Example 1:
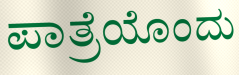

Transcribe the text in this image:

ಪಾತ್ರೆಯೊಂದು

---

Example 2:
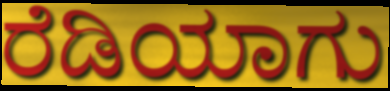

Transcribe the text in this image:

ರೆಡಿಯಾಗು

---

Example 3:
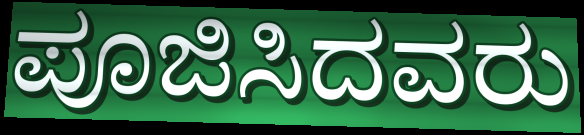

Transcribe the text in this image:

ಪೂಜಿಸಿದವರು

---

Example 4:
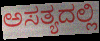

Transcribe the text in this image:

ಅಸತ್ಯದಲ್ಲಿ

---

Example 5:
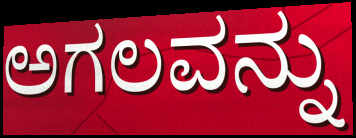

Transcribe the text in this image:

ಅಗಲವನ್ನು